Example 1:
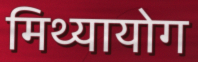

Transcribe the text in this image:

मिथ्यायोग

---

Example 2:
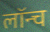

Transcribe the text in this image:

लॉन्‍च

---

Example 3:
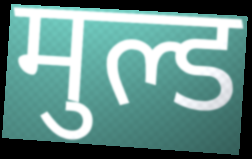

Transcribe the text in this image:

मुल्ड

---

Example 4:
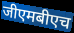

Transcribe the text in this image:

जीएमबीएच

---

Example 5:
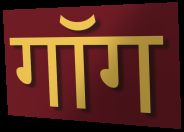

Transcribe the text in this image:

गॉग